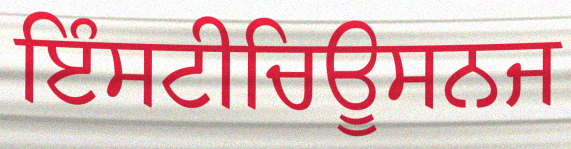
ਇੰਸਟੀਚਿਊਸਨਜ